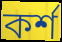
কর্শ